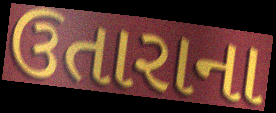
ઉતારાના